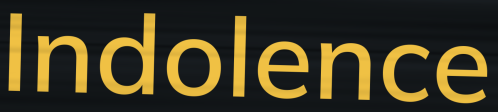
Indolence